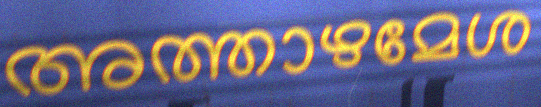
അത്താഴമേശ